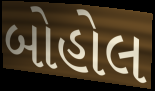
બોહોલ